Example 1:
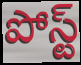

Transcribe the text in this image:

పోస్ట్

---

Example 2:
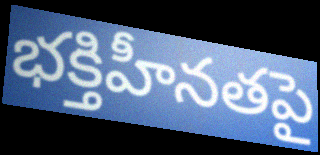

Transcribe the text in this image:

భక్తిహీనతపై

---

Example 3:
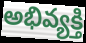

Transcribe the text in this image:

అభివ్యక్తి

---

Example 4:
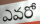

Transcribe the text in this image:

ఎవరో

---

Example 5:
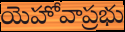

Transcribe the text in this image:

యెహోవాప్రభు